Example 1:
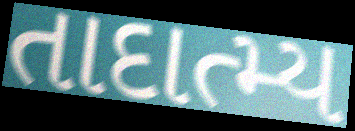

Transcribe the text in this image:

તાદાત્મ્ય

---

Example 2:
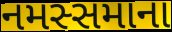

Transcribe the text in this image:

નમસ્સમાના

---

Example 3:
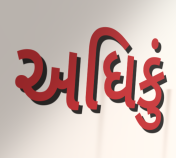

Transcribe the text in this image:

અધિકું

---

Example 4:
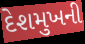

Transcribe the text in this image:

દેશમુખની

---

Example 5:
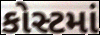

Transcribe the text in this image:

કોસ્ટમાં